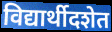
विद्यार्थीदशेत